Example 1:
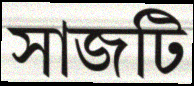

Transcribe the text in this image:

সাজটি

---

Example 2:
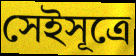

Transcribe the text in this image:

সেইসূত্রে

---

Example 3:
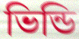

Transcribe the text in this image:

ভিন্ডি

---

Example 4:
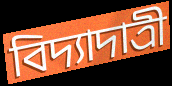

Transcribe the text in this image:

বিদ্যাদাত্রী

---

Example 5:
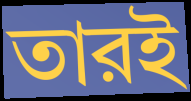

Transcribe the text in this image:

তারই